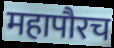
महापौरच